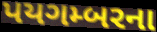
પયગમ્બરના